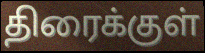
திரைக்குள்